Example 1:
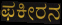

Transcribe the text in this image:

ಫಕೀರನ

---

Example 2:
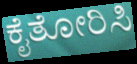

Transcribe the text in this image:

ಕೈತೋರಿಸಿ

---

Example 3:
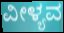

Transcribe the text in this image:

ವೀಳ್ಯವ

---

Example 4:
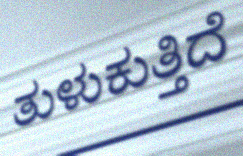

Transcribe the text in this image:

ತುಳುಕುತ್ತಿದೆ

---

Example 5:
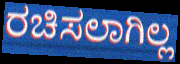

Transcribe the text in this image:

ರಚಿಸಲಾಗಿಲ್ಲ